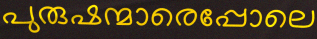
പുരുഷന്മാരെപ്പോലെ